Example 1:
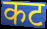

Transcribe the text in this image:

कट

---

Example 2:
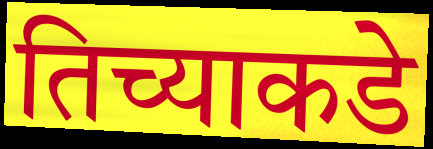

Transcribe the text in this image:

तिच्याकडे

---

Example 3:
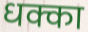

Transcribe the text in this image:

धक्का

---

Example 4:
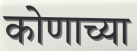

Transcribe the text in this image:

कोणाच्या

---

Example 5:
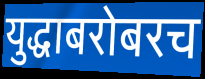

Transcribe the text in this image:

युद्धाबरोबरच